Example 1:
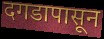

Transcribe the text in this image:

दगडापासून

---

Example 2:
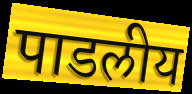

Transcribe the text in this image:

पाडलीय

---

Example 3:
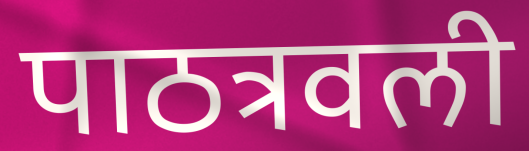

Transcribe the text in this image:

पाठत्रवली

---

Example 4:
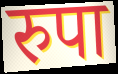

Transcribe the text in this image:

रुपा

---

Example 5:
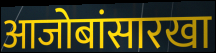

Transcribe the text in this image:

आजोबांसारखा